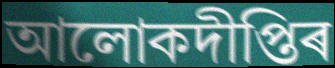
আলোকদীপ্তিৰ